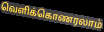
வெளிக்கொணரலாம்